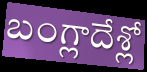
బంగ్లాదేశ్లో